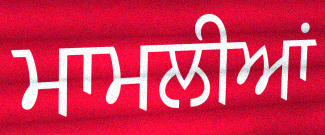
ਮਾਮਲੀਆਂ